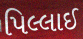
પિલ્લાઈ